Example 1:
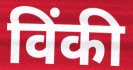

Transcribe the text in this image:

विंकी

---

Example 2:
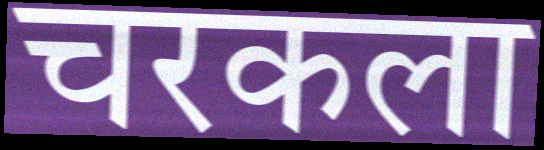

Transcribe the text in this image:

चरकला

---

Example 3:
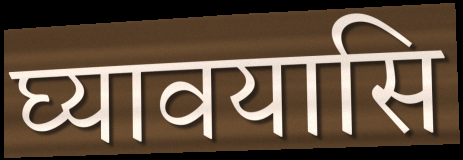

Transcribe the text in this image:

घ्यावयासि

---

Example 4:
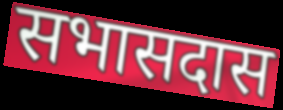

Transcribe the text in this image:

सभासदास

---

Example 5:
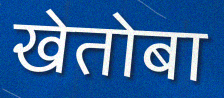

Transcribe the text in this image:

खेतोबा